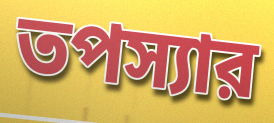
তপস্যার